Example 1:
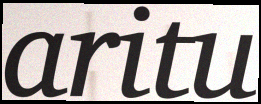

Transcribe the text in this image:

aritu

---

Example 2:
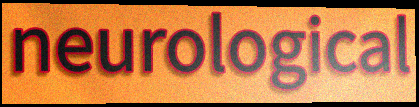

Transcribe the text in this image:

neurological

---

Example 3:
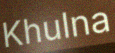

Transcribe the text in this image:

Khulna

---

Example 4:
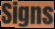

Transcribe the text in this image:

Signs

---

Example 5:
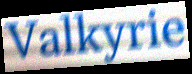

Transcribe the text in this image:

Valkyrie